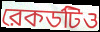
রেকর্ডটিও